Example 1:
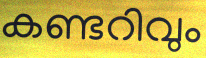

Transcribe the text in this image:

കണ്ടറിവും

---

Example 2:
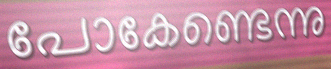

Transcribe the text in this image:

പോകേണ്ടെന്നു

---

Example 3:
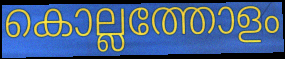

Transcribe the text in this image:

കൊല്ലത്തോളം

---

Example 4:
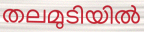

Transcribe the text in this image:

തലമുടിയിൽ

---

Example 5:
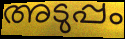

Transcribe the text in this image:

അടുപ്പം